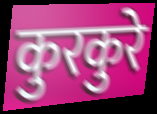
कुरकुरे